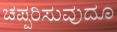
ಚಪ್ಪರಿಸುವುದೂ